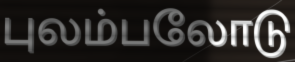
புலம்பலோடு